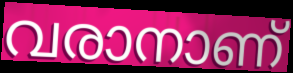
വരാനാണ്